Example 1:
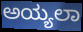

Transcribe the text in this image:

ಅಯ್ಯಲಾ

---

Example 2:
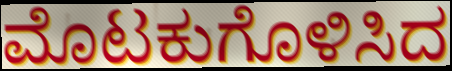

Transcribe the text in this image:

ಮೊಟಕುಗೊಳಿಸಿದ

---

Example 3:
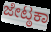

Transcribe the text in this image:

ಜೇಟ್ಠಕಾ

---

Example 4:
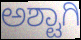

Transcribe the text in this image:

ಅಶ್ಟಾಗಿ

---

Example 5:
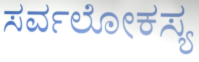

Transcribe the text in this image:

ಸರ್ವಲೋಕಸ್ಯ